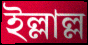
ইল্লাল্ল